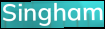
Singham